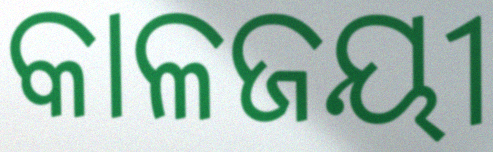
କାଳଜୟୀ